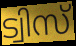
ട്വിസ്